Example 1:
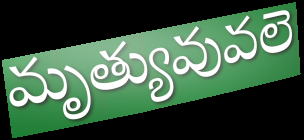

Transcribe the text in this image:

మృత్యువువలె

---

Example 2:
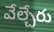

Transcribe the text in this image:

వేల్చేరు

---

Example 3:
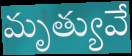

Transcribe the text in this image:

మృత్యువే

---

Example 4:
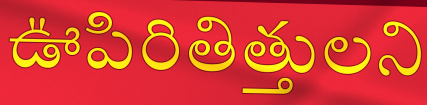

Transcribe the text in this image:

ఊపిరితిత్తులని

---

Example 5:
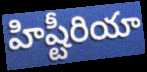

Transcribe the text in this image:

హిష్టీరియా